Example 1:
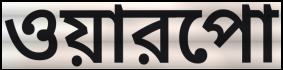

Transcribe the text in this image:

ওয়ারপো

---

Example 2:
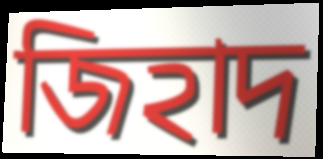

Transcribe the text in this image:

জিহাদ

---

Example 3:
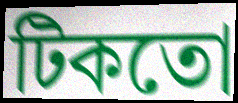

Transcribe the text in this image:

টিকতো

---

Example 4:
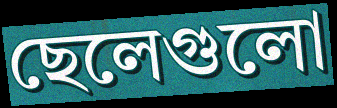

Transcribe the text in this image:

ছেলেগুলো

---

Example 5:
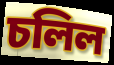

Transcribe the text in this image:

চলিল